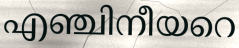
എഞ്ചിനീയറെ